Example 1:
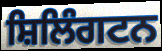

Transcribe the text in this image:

ਸ਼ਿਲਿੰਗਟਨ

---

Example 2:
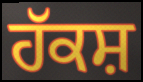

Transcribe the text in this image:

ਹੱਕਸ਼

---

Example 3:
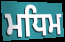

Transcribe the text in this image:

ਮਧਿਮ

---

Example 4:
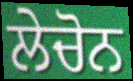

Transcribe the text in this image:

ਲੇਚੋਨ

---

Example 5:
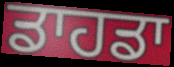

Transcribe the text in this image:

ਡਾਹਡਾ